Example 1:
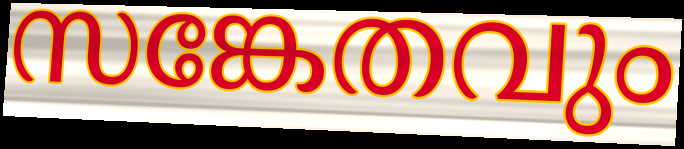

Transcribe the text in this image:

സങ്കേതവും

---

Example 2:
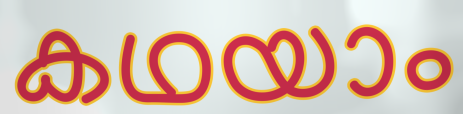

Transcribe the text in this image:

കഥയാം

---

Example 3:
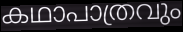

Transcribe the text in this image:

കഥാപാത്രവും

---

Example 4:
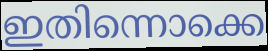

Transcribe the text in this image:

ഇതിന്നൊക്കെ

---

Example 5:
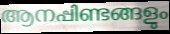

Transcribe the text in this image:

ആനപ്പിണ്ടങ്ങളും